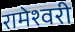
रामेश्वरी